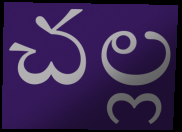
చల్ల